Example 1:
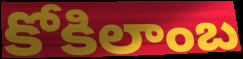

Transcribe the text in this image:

కోకిలాంబ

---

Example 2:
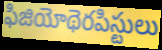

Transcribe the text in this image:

ఫిజియోథెరపిస్టులు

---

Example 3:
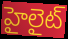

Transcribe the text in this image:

హైలైట్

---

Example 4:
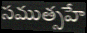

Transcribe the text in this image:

సముత్సహే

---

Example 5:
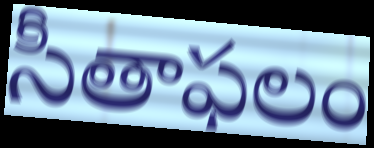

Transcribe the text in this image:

సీతాఫలం